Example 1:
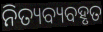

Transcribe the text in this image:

ନିତ୍ୟବ୍ୟବହୃତ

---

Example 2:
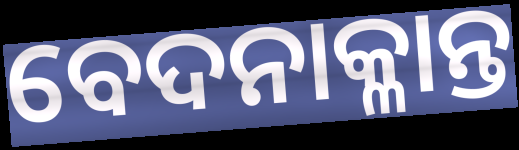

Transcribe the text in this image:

ବେଦନାକ୍ଳାନ୍ତ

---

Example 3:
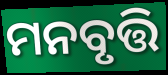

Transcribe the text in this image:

ମନବୃତ୍ତି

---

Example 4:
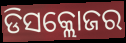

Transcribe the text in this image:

ଡିସକ୍ଲୋଜର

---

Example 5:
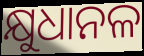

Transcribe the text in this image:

କ୍ଷୁଧାନଳ